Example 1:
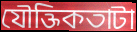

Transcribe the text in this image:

যৌক্তিকতাটা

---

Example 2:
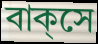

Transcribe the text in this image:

বাক্‌সে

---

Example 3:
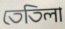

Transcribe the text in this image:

তেতিলা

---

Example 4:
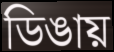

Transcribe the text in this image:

ডিঙায়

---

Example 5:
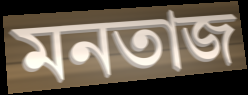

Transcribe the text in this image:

মনতাজ